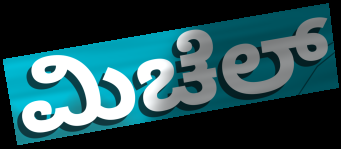
ಮಿಚೆಲ್